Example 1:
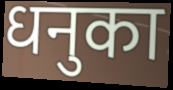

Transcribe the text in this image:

धनुका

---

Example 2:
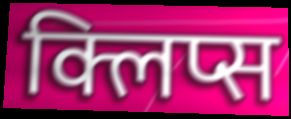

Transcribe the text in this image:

क्लिप्स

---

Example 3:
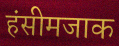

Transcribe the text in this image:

हंसीमजाक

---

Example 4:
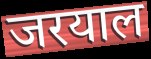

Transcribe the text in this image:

जरयाल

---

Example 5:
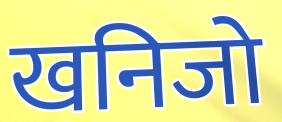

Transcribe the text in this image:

खनिजो